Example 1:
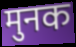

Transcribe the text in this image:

मुनक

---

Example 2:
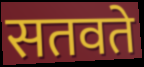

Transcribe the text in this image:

सतवते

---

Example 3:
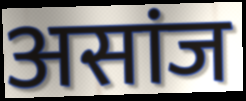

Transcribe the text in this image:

असांज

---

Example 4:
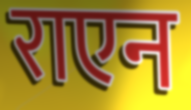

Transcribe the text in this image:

राएन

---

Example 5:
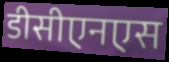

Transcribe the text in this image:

डीसीएनएस